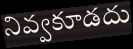
నివ్వకూడదు